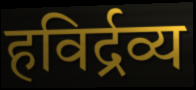
हविर्द्रव्य